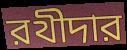
রথীদার